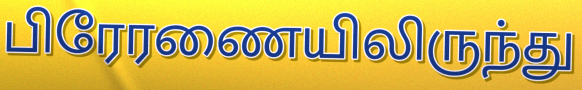
பிரேரணையிலிருந்து